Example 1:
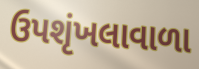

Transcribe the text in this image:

ઉપશૃંખલાવાળા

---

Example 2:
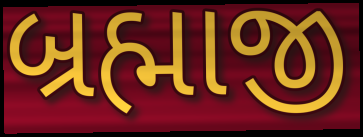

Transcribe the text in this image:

બ્રહ્માજી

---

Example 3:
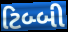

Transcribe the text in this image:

ટિબ્બી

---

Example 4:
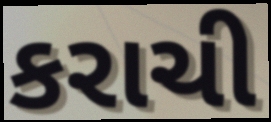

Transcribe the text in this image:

કરાચી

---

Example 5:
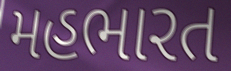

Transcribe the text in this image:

મહભારત